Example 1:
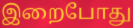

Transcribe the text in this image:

இறைபோது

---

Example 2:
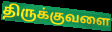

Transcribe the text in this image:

திருக்குவளை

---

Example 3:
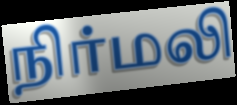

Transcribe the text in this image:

நிர்மலி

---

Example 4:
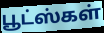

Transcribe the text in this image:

பூட்ஸ்கள்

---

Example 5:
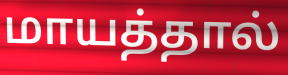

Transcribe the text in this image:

மாயத்தால்